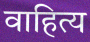
वाहित्य